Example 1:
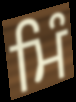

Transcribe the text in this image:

ਮਿੰ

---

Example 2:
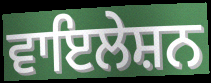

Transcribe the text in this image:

ਵਾਇਲੇਸ਼ਨ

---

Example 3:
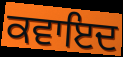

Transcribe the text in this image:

ਕਵਾਇਦ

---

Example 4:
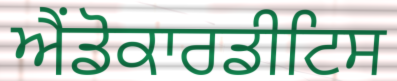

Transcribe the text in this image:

ਐਂਡੋਕਾਰਡੀਟਿਸ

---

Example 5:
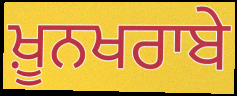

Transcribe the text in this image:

ਖ਼ੂਨਖਰਾਬੇ